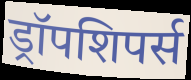
ड्रॉपशिपर्स